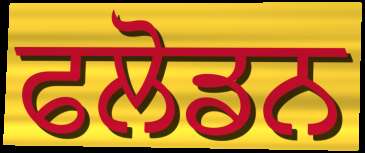
ਫਲੋਡਨ